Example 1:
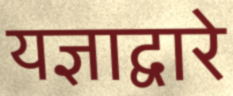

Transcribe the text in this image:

यज्ञाद्वारे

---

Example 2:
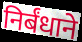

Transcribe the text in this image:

निर्बंधाने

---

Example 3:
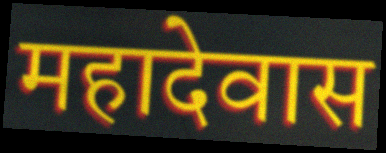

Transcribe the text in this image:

महादेवास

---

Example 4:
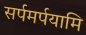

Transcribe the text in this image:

सर्पमर्पयामि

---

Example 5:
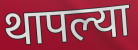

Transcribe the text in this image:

थापल्या